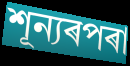
শূন্যৰপৰা